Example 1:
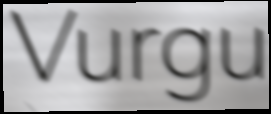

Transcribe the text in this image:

Vurgu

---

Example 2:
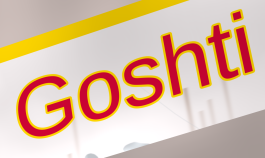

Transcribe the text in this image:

Goshti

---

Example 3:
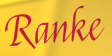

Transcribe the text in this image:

Ranke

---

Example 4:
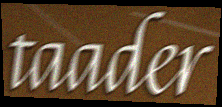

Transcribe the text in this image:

taader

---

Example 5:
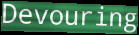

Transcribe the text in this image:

Devouring